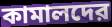
কামালদের